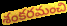
శంకరమంచి